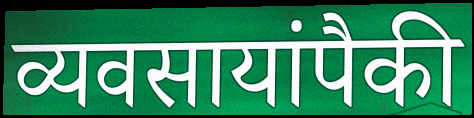
व्यवसायांपैकी